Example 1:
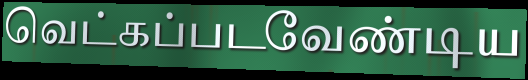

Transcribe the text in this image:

வெட்கப்படவேண்டிய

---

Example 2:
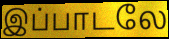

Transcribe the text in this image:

இப்பாடலே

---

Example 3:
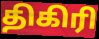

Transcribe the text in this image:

திகிரி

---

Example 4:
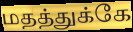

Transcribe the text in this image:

மதத்துக்கே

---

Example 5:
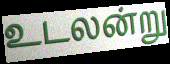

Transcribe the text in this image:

உடலன்று